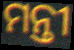
ମନ୍ତୀ